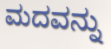
ಮದವನ್ನು